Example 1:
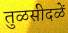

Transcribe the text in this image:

तुळसीदळें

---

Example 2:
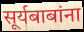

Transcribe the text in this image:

सूर्यबाबांना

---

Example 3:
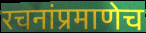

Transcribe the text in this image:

रचनांप्रमाणेच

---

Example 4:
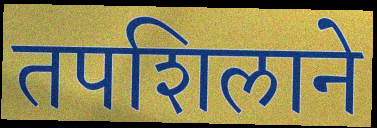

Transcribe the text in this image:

तपशिलाने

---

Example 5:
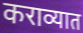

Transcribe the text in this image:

कराव्यात